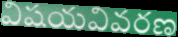
విషయవివరణ